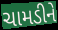
ચામડીને